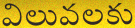
విలువలకు